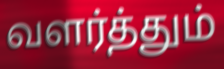
வளர்த்தும்